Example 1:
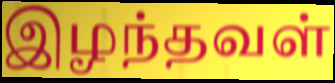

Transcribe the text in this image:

இழந்தவள்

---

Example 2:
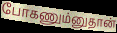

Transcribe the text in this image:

போகணும்னுதான்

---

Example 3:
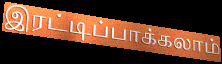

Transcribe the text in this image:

இரட்டிப்பாக்கலாம்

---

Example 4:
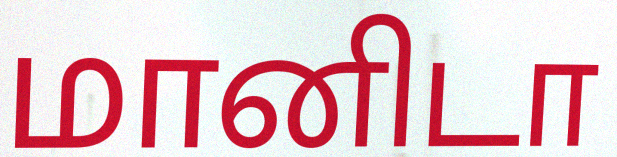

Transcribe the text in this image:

மானிடா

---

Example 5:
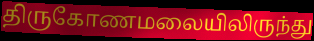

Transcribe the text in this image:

திருகோணமலையிலிருந்து